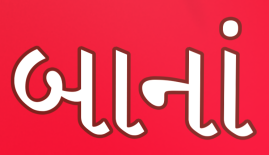
બાનાં